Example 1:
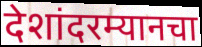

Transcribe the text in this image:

देशांदरम्यानचा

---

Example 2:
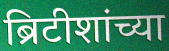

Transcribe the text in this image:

ब्रिटीशांच्या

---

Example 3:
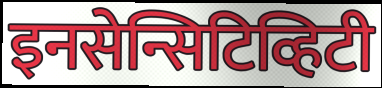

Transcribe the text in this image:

इनसेन्सिटिव्हिटी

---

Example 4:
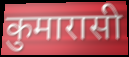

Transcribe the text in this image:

कुमारासी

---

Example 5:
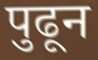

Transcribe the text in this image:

पुढून